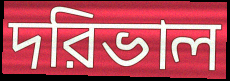
দরিভাল